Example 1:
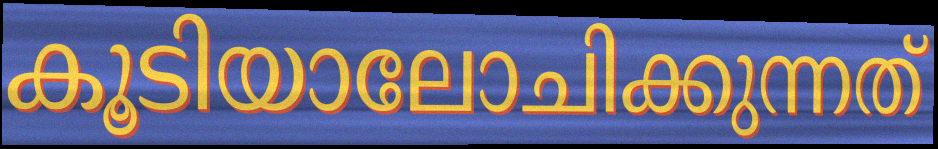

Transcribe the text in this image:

കൂടിയാലോചിക്കുന്നത്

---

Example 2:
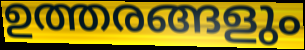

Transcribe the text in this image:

ഉത്തരങ്ങളും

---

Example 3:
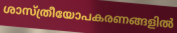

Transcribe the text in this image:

ശാസ്ത്രീയോപകരണങ്ങളിൽ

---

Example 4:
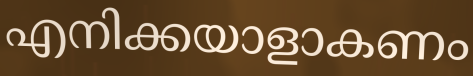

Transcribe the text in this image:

എനിക്കയാളാകണം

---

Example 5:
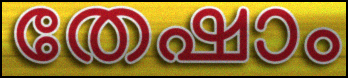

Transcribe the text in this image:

തേഷാം